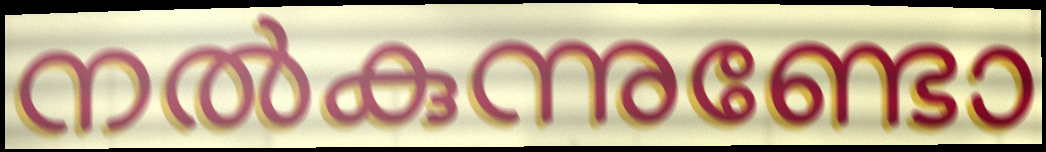
നൽകുന്നുണ്ടോ